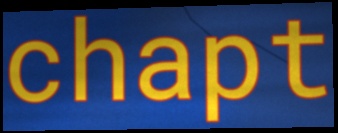
chapt